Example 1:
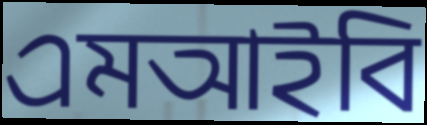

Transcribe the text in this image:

এমআইবি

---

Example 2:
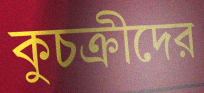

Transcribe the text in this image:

কুচক্রীদের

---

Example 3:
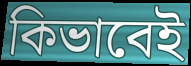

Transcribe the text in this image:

কিভাবেই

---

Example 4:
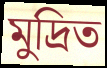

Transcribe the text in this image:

মুদ্রিত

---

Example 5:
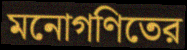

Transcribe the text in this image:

মনোগণিতের